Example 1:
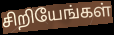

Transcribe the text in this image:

சிறியேங்கள்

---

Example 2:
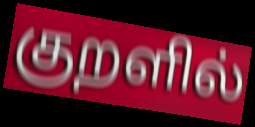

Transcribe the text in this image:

குறளில்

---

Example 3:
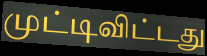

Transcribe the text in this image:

முட்டிவிட்டது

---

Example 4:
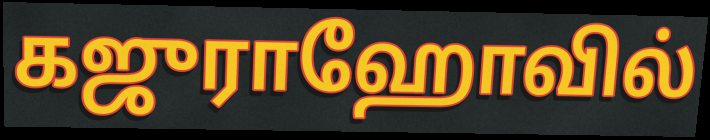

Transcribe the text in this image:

கஜுராஹோவில்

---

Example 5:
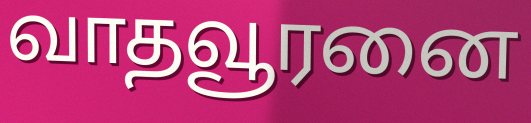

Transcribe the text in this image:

வாதவூரனை